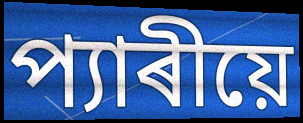
প্যাৰীয়ে